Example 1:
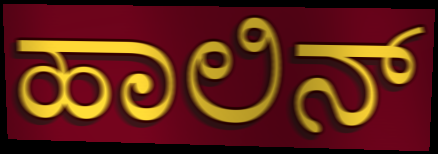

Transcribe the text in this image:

ಹಾಲಿನ್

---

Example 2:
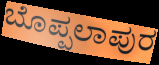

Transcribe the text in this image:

ಬೊಪ್ಪಲಾಪುರ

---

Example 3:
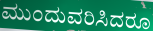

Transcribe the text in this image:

ಮುಂದುವರಿಸಿದರೂ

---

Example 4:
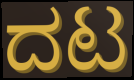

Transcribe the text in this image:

ದಟ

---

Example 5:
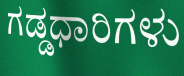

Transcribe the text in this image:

ಗಡ್ಡಧಾರಿಗಳು